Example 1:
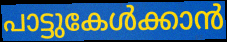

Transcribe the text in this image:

പാട്ടുകേൾക്കാൻ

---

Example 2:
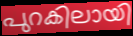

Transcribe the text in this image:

പുറകിലായി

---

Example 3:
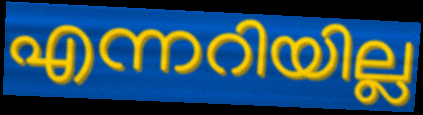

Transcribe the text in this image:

എന്നറിയില്ല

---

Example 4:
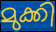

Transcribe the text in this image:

മുക്കി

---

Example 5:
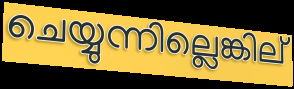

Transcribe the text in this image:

ചെയ്യുന്നില്ലെങ്കില്